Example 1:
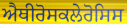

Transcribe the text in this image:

ਐਥੀਰੋਸਕਲੇਰੋਸਿਸ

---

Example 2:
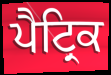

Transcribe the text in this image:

ਪੈਟ੍ਰਿਕ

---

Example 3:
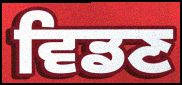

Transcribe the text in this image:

ਵਿਡਣ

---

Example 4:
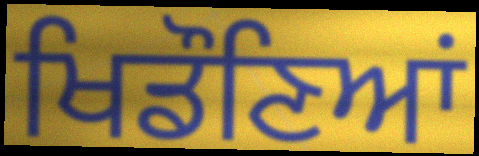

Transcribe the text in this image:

ਖਿਡੌਣਿਆਂ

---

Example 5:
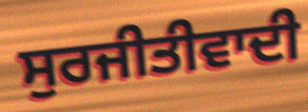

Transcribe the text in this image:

ਸੁਰਜੀਤੀਵਾਦੀ